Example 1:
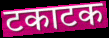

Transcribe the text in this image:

टकाटक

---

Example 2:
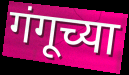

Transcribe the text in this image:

गंगूच्या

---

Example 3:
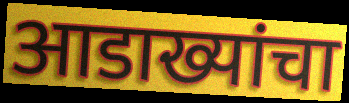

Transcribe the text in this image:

आडाख्यांचा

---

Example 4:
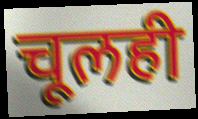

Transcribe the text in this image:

चूलही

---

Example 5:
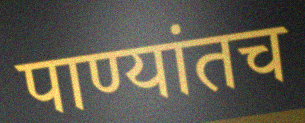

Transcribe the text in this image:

पाण्यांतच